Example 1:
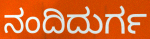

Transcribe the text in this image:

ನಂದಿದುರ್ಗ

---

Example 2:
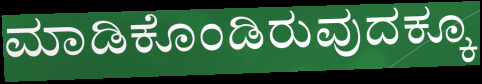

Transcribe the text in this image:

ಮಾಡಿಕೊಂಡಿರುವುದಕ್ಕೂ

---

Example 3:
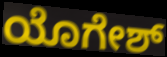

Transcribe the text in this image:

ಯೊಗೇಶ್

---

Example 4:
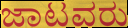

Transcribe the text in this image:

ಜಾಟವರು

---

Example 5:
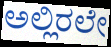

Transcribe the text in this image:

ಅಲ್ಲಿರಲೇ